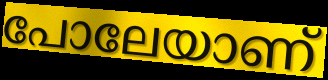
പോലേയാണ്